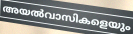
അയൽവാസികളെയും